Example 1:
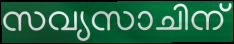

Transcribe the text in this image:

സവ്യസാചിന്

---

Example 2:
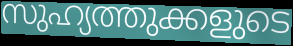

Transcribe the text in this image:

സുഹ്യത്തുക്കളുടെ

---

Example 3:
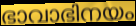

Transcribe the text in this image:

ഭാവാഭിനയം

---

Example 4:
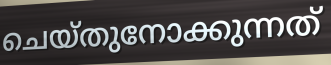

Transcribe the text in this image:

ചെയ്തുനോക്കുന്നത്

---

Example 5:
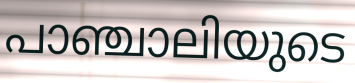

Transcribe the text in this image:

പാഞ്ചാലിയുടെ